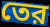
তের